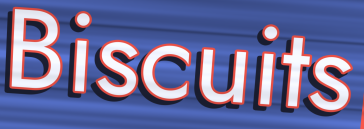
Biscuits